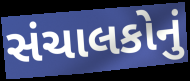
સંચાલકોનું